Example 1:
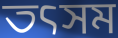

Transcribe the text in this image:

তৎসম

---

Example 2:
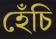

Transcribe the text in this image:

হেঁচি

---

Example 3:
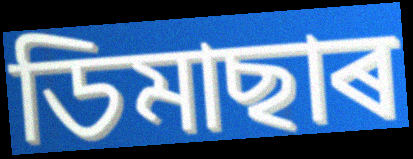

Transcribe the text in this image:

ডিমাছাৰ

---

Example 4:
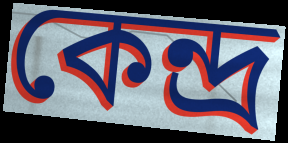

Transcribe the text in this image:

কেন্দ্ৰ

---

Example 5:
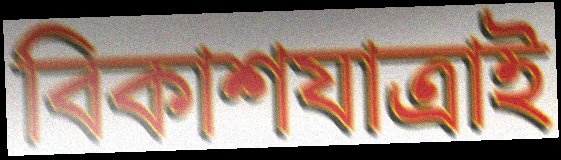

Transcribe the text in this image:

বিকাশযাত্ৰাই